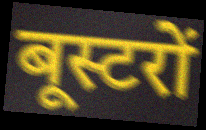
बूस्टरों